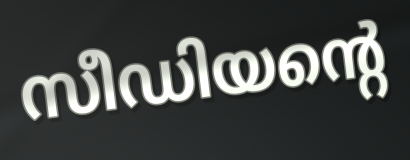
സീഡിയന്റെ